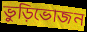
ভুড়িভোজন